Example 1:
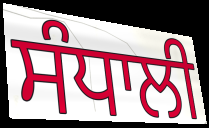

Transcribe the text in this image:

ਸੰਧਾਲੀ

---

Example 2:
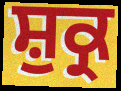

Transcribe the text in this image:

ਸ਼ੁਕ੍ਰ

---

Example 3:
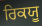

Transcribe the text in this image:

ਰਿਕਯੂ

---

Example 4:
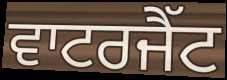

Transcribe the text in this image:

ਵਾਟਰਜੈੱਟ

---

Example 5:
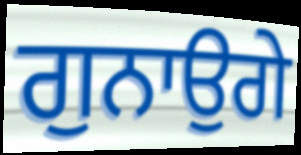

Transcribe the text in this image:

ਗੁਨਾਉਗੇ